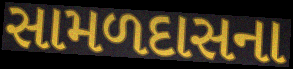
સામળદાસના